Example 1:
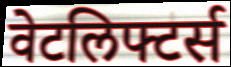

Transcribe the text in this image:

वेटलिफ्टर्स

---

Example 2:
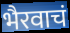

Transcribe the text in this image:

भैरवाचं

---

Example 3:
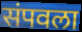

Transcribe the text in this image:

संपवला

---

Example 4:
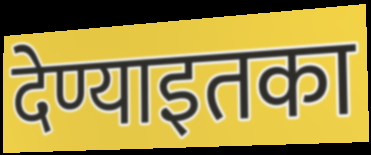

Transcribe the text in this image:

देण्याइतका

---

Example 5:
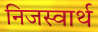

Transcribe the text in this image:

निजस्वार्थ